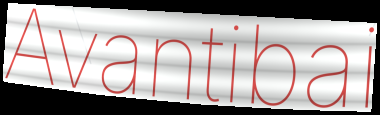
Avantibai